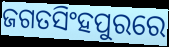
ଜଗତସିଂହପୁରରେ